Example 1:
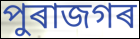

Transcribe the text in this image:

পুৰাজগৰ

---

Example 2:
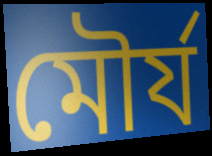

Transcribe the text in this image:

মৌৰ্য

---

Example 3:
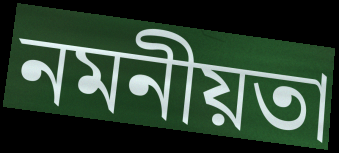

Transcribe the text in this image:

নমনীয়তা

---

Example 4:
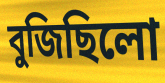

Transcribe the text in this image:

বুজিছিলো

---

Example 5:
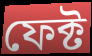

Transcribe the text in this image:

ফেক্ট